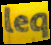
leq